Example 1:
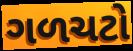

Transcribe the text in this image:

ગળચટો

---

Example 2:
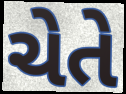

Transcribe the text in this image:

ચેતે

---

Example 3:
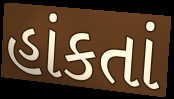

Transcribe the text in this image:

હાંકતાં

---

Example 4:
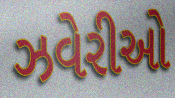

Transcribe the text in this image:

ઝવેરીઓ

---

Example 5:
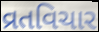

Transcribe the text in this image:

વ્રતવિચાર